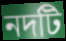
নদটি